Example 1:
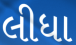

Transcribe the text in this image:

લીધા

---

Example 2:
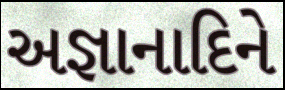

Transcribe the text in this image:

અજ્ઞાનાદિને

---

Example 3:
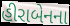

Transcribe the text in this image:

હીરાબેનના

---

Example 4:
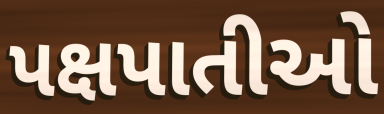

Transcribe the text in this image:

પક્ષપાતીઓ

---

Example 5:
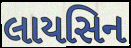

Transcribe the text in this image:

લાયસિન